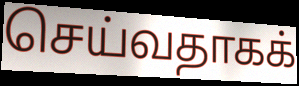
செய்வதாகக்